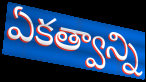
ఏకత్వాన్ని